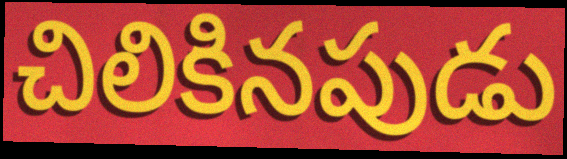
చిలికినపుడు